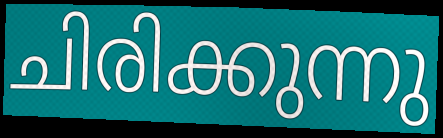
ചിരിക്കുന്നു